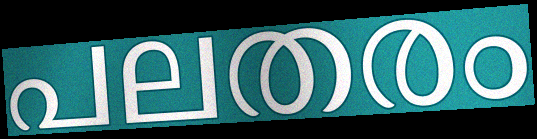
പലതരം